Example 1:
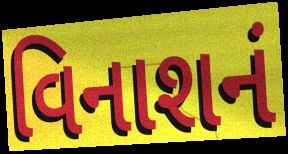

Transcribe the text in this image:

વિનાશનં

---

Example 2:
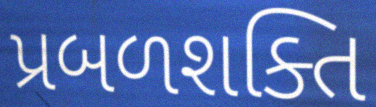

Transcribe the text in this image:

પ્રબળશક્તિ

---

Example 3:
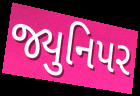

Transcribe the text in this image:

જ્યુનિપર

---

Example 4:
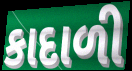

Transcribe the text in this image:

કાદાળી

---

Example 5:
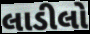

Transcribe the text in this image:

લાડીલો